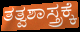
ತತ್ವಶಾಸ್ತ್ರಕ್ಕೆ